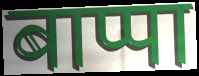
बाप्पा